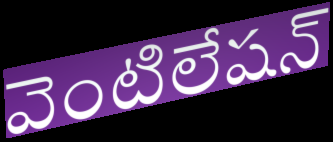
వెంటిలేషన్